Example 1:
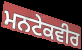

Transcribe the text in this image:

ਮਨਟੇਕਵੀਰ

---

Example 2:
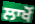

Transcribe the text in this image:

ਲਾਖੋਂ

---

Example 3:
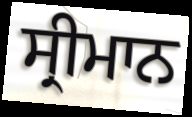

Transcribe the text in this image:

ਸ੍ਰੀਮਾਨ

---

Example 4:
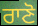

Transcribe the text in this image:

ਰਾਣੋ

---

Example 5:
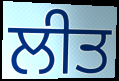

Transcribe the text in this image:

ਲੀਤ